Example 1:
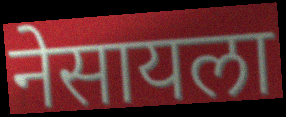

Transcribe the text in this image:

नेसायला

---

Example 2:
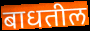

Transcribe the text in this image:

बाधतील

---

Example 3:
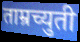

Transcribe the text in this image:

ताम्रच्युती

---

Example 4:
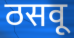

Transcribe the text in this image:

ठसवू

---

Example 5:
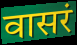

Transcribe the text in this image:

वासरं